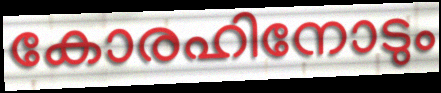
കോരഹിനോടും